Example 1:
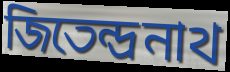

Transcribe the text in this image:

জিতেন্দ্রনাথ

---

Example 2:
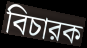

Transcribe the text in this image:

বিচারক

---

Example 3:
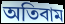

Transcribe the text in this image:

অতিবাম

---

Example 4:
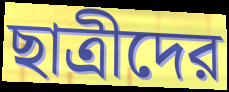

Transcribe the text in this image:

ছাত্রীদের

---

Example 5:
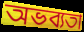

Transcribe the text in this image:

অভব্যতা